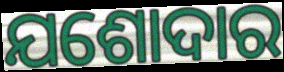
ଯଶୋଦାର